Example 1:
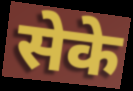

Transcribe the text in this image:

सेके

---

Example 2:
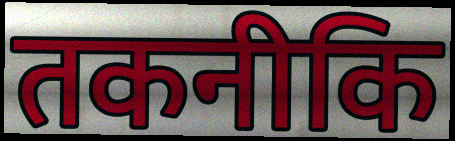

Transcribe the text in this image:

तकनीकि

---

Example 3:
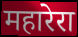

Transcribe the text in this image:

महारेरा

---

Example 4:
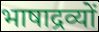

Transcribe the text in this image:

भाषाद्रव्यों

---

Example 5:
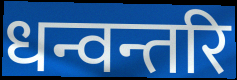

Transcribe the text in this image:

धन्वन्तरि